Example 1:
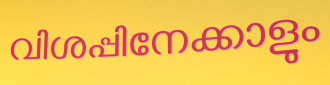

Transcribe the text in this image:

വിശപ്പിനേക്കാളും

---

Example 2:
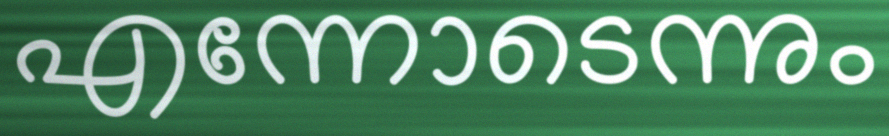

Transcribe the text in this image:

എന്നോടെന്നും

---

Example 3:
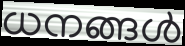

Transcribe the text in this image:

ധനങ്ങൾ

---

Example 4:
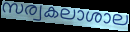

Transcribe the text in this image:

സര്വകലാശാല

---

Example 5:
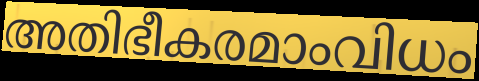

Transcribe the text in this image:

അതിഭീകരമാംവിധം